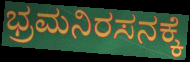
ಭ್ರಮನಿರಸನಕ್ಕೆ